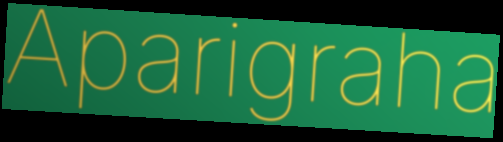
Aparigraha